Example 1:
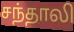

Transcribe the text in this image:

சந்தாலி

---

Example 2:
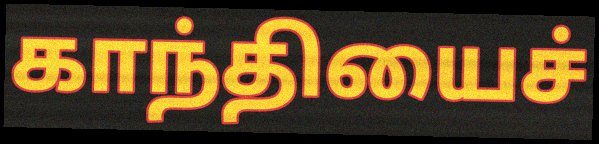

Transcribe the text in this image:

காந்தியைச்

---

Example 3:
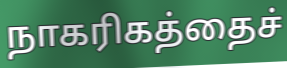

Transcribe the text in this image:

நாகரிகத்தைச்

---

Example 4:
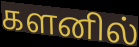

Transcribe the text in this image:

களனில்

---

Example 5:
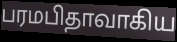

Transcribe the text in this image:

பரமபிதாவாகிய